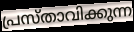
പ്രസ്താവിക്കുന്ന